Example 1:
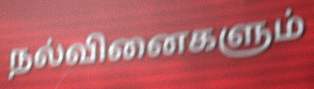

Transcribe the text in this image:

நல்வினைகளும்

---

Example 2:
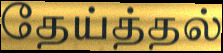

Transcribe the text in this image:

தேய்த்தல்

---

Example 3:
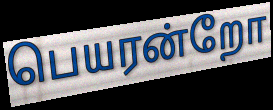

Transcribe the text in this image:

பெயரன்றோ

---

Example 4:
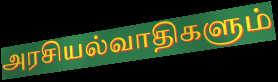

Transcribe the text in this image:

அரசியல்வாதிகளும்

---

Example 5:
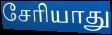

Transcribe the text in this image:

சேரியாது